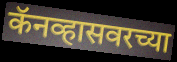
कॅनव्हासवरच्या